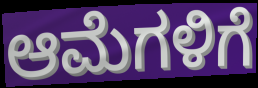
ಆಮೆಗಳಿಗೆ